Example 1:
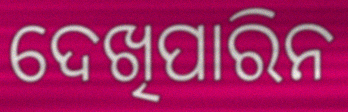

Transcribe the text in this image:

ଦେଖିପାରିନ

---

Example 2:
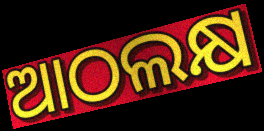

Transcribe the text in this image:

ଆଠଲକ୍ଷ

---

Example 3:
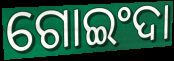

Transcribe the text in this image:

ଗୋଇଂଦା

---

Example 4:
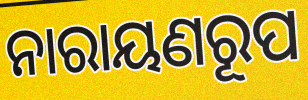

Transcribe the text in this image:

ନାରାୟଣରୂପ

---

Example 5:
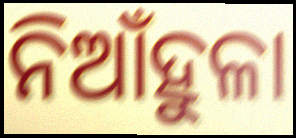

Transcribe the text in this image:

ନିଆଁହୁଳା